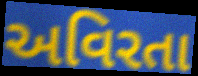
અવિરતા